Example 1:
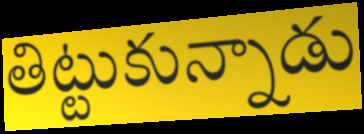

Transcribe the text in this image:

తిట్టుకున్నాడు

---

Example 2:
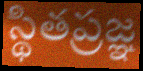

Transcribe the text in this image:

స్థితప్రజ్ఞ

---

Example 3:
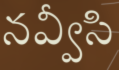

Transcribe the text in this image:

నవ్వీసి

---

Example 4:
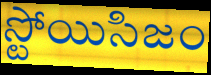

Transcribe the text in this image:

స్టోయిసిజం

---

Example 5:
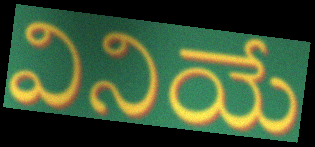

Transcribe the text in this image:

వినియే